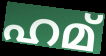
ഹമ്